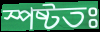
স্পষ্টতঃ